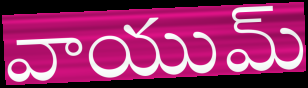
వాయుమ్